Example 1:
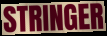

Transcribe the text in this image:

STRINGER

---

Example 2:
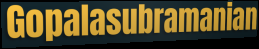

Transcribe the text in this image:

Gopalasubramanian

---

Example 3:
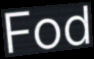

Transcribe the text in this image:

Fod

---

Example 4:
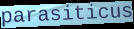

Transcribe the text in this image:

parasiticus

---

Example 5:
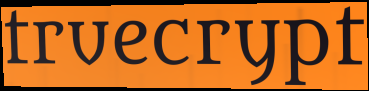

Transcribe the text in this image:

truecrypt